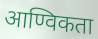
आण्विकता